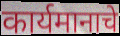
कार्यमानाचे